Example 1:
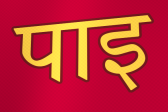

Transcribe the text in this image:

पाइ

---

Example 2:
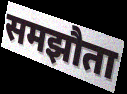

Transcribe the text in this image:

समझौता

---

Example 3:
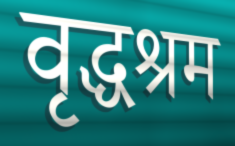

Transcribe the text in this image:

वृद्धश्रम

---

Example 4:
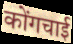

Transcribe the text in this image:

कोंगचाई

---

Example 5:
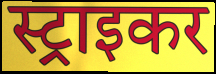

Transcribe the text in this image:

स्ट्राइकर